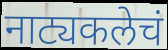
नाट्यकलेचं